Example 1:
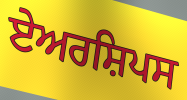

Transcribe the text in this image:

ਏਅਰਸ਼ਿਪਸ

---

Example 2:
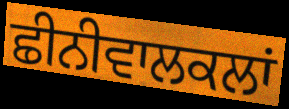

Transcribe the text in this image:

ਛੀਨੀਵਾਲਕਲਾਂ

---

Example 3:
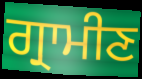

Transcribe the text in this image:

ਗ੍ਰਾਮੀਣ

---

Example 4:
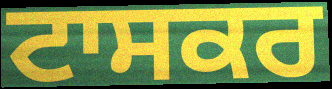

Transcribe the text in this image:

ਟਾਸਕਰ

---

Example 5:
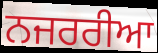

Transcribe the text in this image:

ਨਜਰਰੀਆ